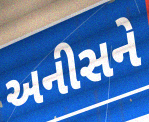
અનીસને